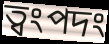
ত্বংপদং